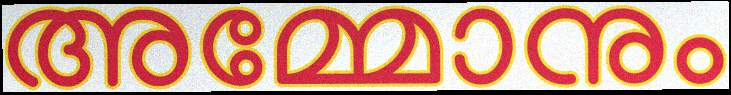
അമ്മോനും